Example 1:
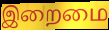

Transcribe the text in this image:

இறைமை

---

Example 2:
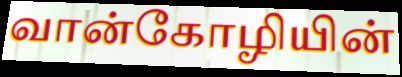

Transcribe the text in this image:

வான்கோழியின்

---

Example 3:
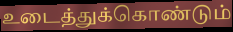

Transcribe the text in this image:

உடைத்துக்கொண்டும்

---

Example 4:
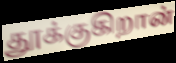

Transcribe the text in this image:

தூக்குகிறான்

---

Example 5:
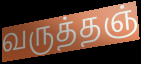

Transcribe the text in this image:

வருத்தஞ்